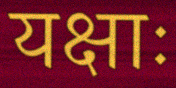
यक्षाः